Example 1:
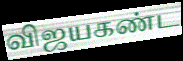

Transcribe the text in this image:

விஜயகண்ட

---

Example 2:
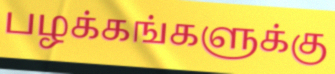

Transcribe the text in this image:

பழக்கங்களுக்கு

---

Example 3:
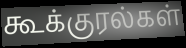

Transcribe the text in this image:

கூக்குரல்கள்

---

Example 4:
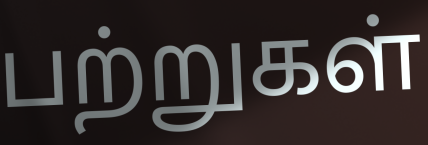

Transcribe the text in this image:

பற்றுகள்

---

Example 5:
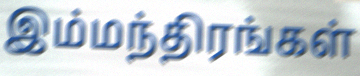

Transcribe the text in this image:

இம்மந்திரங்கள்